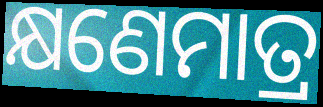
କ୍ଷଣେମାତ୍ର